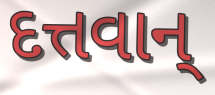
દત્તવાન્